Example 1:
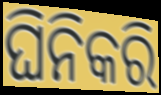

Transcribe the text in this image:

ଘିନିକରି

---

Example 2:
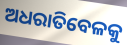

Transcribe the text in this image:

ଅଧରାତିବେଳକୁ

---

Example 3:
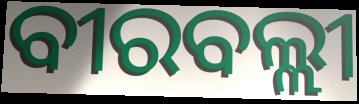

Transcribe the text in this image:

ବୀରବଲ୍ଲୀ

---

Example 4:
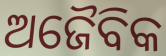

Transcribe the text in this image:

ଅଜୈବିକ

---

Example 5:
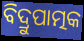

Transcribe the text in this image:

ବିଦ୍ରୁପାତ୍ମକ